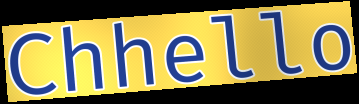
Chhello